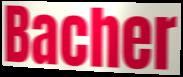
Bacher